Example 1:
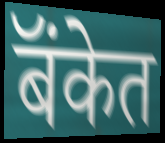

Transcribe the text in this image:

बॅंकेत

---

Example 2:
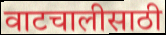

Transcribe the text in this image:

वाटचालीसाठी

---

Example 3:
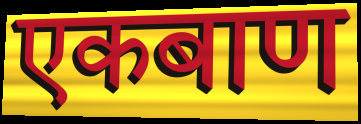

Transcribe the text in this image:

एकबाण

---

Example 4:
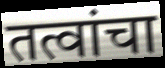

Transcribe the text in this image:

तत्वांचा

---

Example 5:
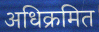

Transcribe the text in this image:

अधिक्रमित